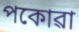
পকোৱা